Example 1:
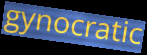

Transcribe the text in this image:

gynocratic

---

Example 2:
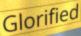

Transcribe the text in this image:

Glorified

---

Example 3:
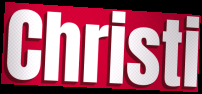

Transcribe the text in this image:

Christi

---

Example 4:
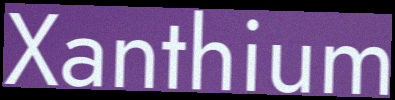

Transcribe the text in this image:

Xanthium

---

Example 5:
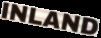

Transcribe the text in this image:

INLAND